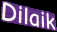
Dilaik